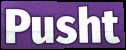
Pusht